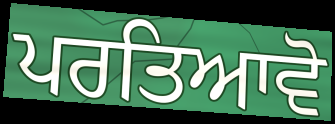
ਪਰਤਿਆਵੋ